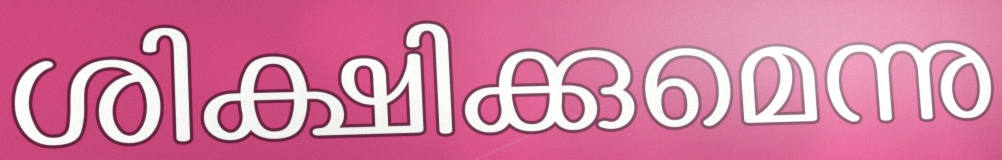
ശിക്ഷിക്കുമെന്നു